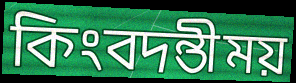
কিংবদন্তীময়